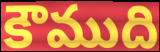
కౌముది